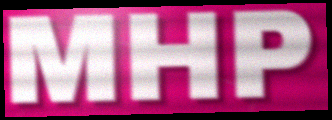
MHP